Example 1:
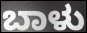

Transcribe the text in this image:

ಬಾಳು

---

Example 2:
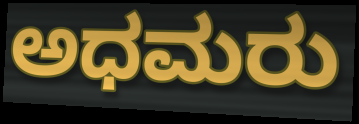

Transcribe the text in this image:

ಅಧಮರು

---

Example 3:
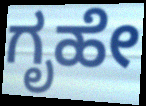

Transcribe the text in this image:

ಗೃಹೇ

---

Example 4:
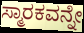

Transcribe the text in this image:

ಸ್ಮಾರಕವನ್ನೇ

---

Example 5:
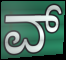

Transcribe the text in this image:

ವ್